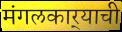
मंगलकार्याची